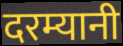
दरम्यानी